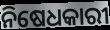
ନିଷେଧକାରୀ